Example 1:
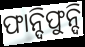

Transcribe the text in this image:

ଫାନ୍ଦିଫୁନ୍ଦି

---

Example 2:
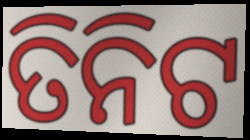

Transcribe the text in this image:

ତିନିଟ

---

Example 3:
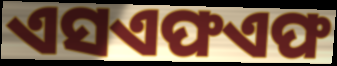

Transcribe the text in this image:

ଏସଏଫଏଫ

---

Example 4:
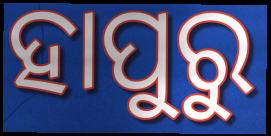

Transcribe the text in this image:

ହାପୁରୁ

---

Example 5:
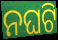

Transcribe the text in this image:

ନଘଟି